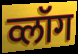
व्लॉग